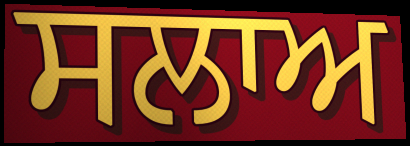
ਸਲਾਅ